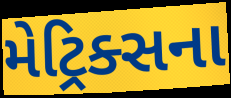
મેટ્રિક્સના